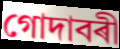
গোদাবৰী